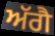
ਅੱਗੈ